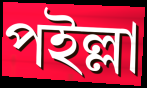
পইল্লা